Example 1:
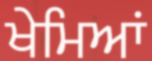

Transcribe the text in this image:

ਖੇਮਿਆਂ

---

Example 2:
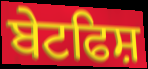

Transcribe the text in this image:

ਬੇਟਫਿਸ਼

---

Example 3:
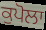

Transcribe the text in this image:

ਕੁਪੋਲਾ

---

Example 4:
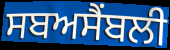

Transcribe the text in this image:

ਸਬਅਸੈਂਬਲੀ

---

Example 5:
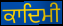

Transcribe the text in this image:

ਕਾਦਿਮੀ